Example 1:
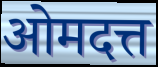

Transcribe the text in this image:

ओमदत्त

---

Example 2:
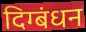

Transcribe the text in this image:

दिग्बंधन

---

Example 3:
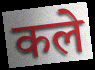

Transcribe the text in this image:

कले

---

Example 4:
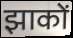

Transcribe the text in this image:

झाकों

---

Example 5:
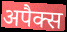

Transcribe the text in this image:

अपैक्स